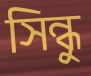
সিন্ধু